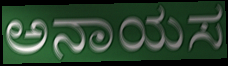
ಅನಾಯಸ